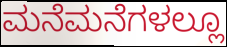
ಮನೆಮನೆಗಳಲ್ಲೂ